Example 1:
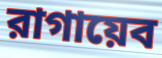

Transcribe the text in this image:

রাগায়েব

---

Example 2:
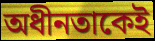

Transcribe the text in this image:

অধীনতাকেই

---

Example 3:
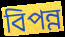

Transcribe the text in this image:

বিপন্ন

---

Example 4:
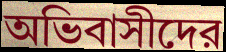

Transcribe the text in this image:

অভিবাসীদের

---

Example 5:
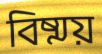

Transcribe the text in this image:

বিষ্ময়